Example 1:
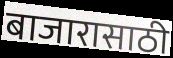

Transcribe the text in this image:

बाजारासाठी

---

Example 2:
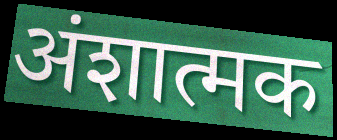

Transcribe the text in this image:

अंशात्मक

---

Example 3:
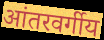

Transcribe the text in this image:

आंतरवर्गीय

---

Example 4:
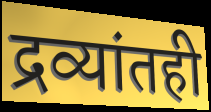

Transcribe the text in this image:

द्रव्यांतही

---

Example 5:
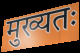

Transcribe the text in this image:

मुख्यतः